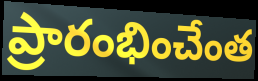
ప్రారంభించేంత